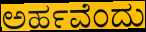
ಅರ್ಹವೆಂದು